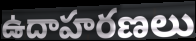
ఉదాహరణలు